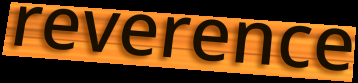
reverence